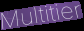
Multitier